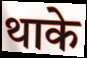
थाके